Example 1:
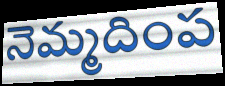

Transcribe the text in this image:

నెమ్మదింప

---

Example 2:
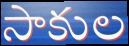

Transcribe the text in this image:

సాకుల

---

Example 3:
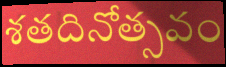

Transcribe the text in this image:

శతదినోత్సవం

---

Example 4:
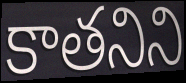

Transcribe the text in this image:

కాతనిని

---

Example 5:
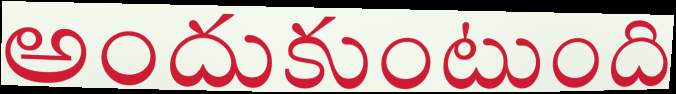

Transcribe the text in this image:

అందుకుంటుంది